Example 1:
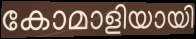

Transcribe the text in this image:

കോമാളിയായി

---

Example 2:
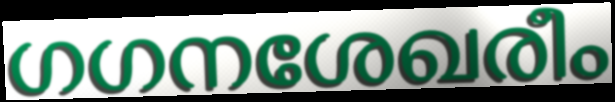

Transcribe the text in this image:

ഗഗനശേഖരീം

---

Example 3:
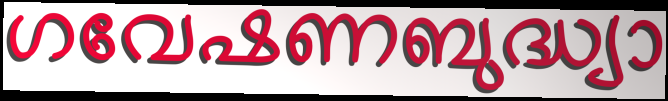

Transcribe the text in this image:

ഗവേഷണബുദ്ധ്യാ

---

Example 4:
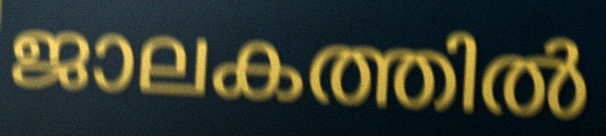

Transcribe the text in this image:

ജാലകത്തിൽ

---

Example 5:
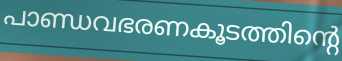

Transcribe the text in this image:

പാണ്ഡവഭരണകൂടത്തിന്റെ